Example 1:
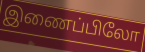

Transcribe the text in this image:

இணைப்பிலோ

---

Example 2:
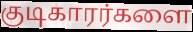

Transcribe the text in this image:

குடிகாரர்களை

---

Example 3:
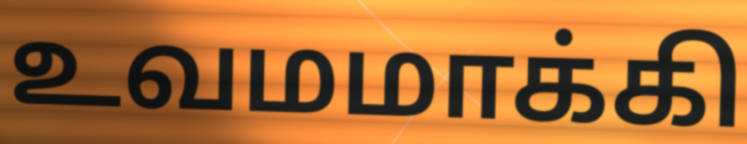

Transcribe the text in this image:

உவமமாக்கி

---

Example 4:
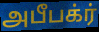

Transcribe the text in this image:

அபீபக்ர்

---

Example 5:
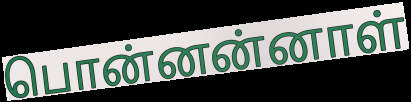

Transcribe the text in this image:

பொன்னன்னாள்